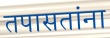
तपासतांना